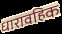
धारावहिक